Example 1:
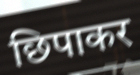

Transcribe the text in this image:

छिपाकर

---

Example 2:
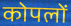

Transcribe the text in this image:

कोपलों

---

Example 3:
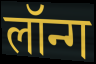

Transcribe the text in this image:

लॉन्ग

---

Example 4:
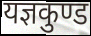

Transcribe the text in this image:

यज्ञकुण्ड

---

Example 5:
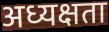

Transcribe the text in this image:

अध्यक्षता